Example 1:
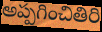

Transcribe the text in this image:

అప్పగించితిరి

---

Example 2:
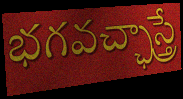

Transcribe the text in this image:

భగవచ్ఛాస్త్రే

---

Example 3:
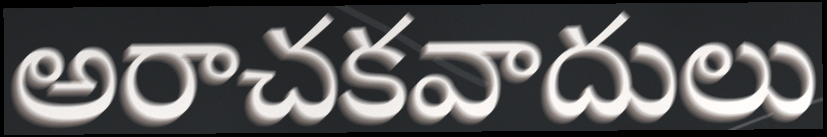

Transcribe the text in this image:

అరాచకవాదులు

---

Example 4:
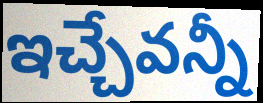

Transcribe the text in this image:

ఇచ్చేవన్నీ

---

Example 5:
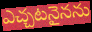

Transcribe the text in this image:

ఎచ్చటనైనను